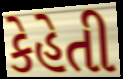
કેહેતી